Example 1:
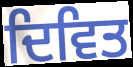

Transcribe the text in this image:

ਦਿਵਿਤ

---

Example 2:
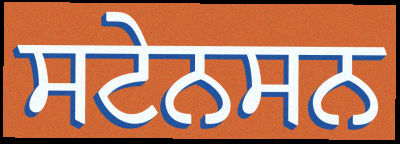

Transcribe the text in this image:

ਸਟੇਨਸਨ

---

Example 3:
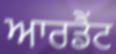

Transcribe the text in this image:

ਆਰਡੈਂਟ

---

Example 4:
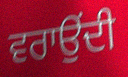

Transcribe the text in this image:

ਵਰਾਉਂਦੀ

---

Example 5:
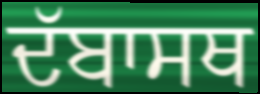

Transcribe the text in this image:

ਦੱਬਾਸਥ